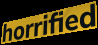
horrified